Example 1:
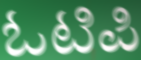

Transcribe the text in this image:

ಓಟಿಪಿ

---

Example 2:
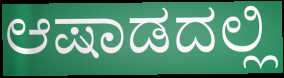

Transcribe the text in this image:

ಆಷಾಡದಲ್ಲಿ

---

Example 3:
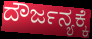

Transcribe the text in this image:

ದೌರ್ಜನ್ಯಕ್ಕೆ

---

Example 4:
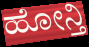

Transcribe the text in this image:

ಹೋನ್ತಿ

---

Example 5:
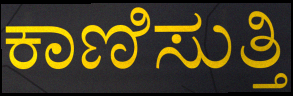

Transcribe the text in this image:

ಕಾಣಿಸುತ್ತಿ